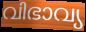
വിഭാവ്യ